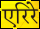
एरिरे